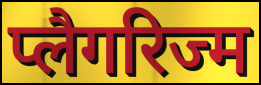
प्लैगरिज्म